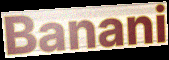
Banani